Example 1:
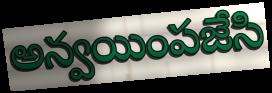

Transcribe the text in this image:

అన్వయింపజేసి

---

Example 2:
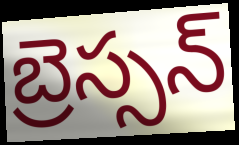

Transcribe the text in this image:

బ్రెస్సన్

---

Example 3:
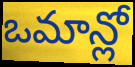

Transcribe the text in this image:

ఒమాన్లో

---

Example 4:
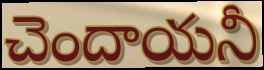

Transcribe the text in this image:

చెందాయనీ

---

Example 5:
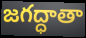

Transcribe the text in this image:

జగద్ధాతా